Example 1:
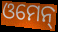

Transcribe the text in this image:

ଓମେନ୍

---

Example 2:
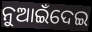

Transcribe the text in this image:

ନୁଆଇଁଦେଇ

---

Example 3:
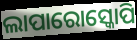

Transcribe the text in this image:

ଲାପାରୋସ୍କୋପି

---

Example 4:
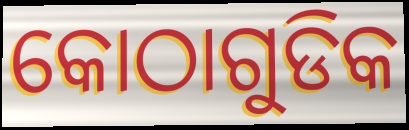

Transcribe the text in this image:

କୋଠାଗୁଡିକ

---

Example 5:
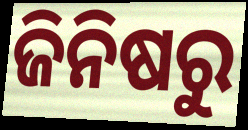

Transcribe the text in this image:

ଜିନିଷରୁ